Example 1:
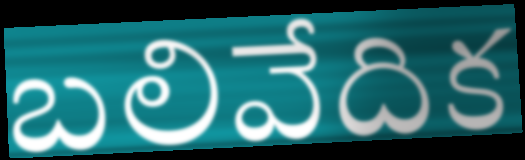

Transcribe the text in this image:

బలివేదిక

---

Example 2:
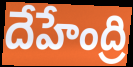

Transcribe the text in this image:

దేహేంద్రి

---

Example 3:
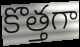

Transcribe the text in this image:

కొత్తగా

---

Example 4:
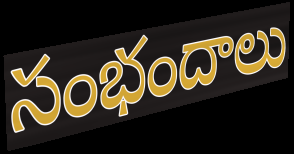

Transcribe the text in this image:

సంభందాలు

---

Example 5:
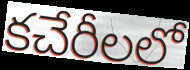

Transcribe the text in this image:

కచేరీలలో